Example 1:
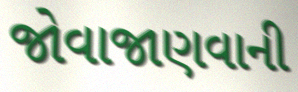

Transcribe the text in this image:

જોવાજાણવાની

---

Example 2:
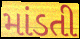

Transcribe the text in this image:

માંડતી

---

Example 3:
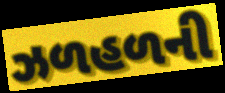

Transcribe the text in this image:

ઝળહળની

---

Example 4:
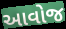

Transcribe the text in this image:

આવોજ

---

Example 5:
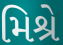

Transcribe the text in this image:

મિશ્રે